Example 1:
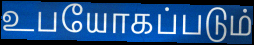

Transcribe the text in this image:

உபயோகப்படும்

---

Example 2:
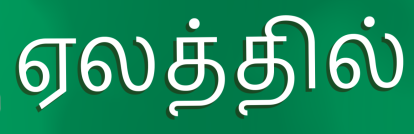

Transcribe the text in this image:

ஏலத்தில்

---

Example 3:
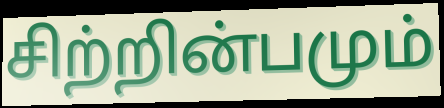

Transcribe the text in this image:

சிற்றின்பமும்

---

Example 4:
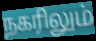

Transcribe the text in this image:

நகரிலும்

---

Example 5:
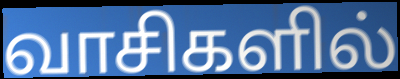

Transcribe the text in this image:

வாசிகளில்